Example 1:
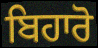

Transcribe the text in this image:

ਬਿਹਾਰੋ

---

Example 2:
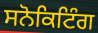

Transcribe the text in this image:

ਸਨੋਕਿਟਿੰਗ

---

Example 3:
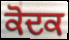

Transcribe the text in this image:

ਕੋਦਕ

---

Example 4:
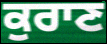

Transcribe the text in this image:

ਕੁਰਾਣ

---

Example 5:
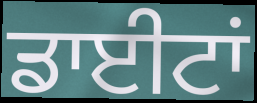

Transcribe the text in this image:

ਡਾਈਟਾਂ